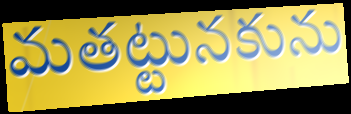
మతట్టునకును